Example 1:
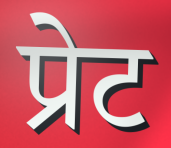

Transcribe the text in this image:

प्रेट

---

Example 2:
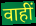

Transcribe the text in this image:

वाहीं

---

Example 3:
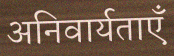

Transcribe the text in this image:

अनिवार्यताएँ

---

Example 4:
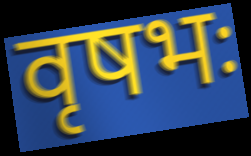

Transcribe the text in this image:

वृषभः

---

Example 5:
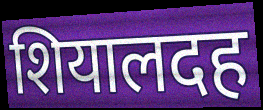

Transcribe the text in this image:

शियालदह